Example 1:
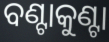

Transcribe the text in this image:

ବଣ୍ଟାକୁଣ୍ଟା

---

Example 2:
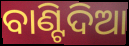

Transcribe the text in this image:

ବାଣ୍ଟିଦିଆ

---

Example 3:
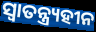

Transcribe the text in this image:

ସ୍ଵାତନ୍ତ୍ର୍ୟହୀନ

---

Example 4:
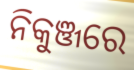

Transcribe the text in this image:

ନିକୁଞ୍ଜରେ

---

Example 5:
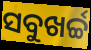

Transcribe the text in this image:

ସବୁଖର୍ଚ୍ଚ